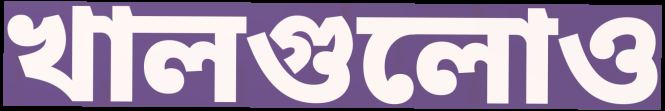
খালগুলোও